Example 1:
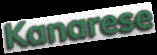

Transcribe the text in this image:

Kanarese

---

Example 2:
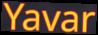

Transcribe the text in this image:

Yavar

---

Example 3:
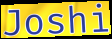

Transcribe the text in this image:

Joshi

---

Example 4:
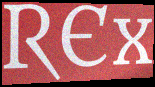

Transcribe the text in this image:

REx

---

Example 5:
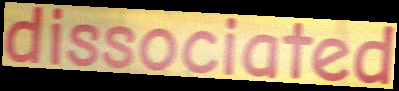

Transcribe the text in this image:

dissociated